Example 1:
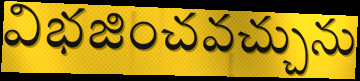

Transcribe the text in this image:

విభజించవచ్చును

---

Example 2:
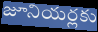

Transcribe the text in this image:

జూనియర్లకు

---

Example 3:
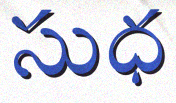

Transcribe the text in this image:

సుధ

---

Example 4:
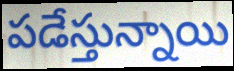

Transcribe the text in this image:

పడేస్తున్నాయి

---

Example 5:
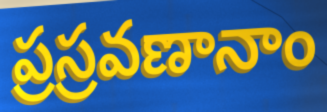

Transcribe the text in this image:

ప్రస్రవణానాం